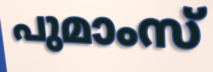
പുമാംസ്